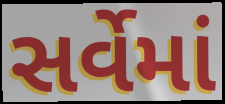
સર્વેમાં